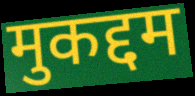
मुकद्दम